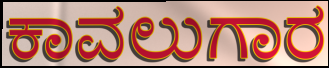
ಕಾವಲುಗಾರ